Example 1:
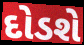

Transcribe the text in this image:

દોડશે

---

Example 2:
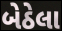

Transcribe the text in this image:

બેઠેલા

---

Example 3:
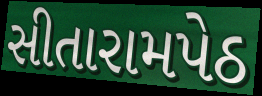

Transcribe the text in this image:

સીતારામપેઠ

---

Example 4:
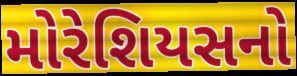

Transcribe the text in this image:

મોરેશિયસનો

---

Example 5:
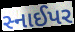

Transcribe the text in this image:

સ્નાઈપર